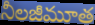
నీలజీమూత